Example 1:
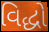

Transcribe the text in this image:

વિદ્ધો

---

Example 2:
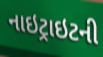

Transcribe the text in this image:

નાઇટ્રાઇટની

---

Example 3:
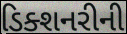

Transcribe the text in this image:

ડિક્શનરીની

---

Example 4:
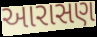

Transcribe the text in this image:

આરાસણ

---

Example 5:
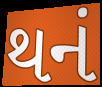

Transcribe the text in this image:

થનં